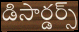
డిసార్డర్స్